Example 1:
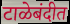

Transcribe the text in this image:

टाळेबंदीत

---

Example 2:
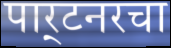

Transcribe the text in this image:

पार्टनरचा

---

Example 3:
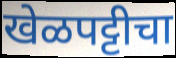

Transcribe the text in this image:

खेळपट्टीचा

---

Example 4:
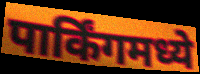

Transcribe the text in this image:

पार्किंगमध्ये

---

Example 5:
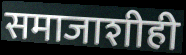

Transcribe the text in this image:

समाजाशीही